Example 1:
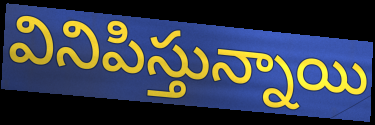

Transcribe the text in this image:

వినిపిస్తున్నాయి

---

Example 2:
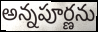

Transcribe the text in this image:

అన్నపూర్ణను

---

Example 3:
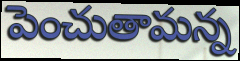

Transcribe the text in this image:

పెంచుతామన్న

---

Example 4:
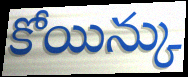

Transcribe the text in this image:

కోయిన్కు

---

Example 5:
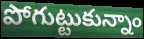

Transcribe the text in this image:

పోగుట్టుకున్నాం